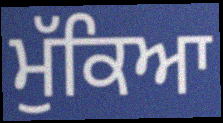
ਮੁੱਕਿਆ